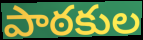
పాఠకుల